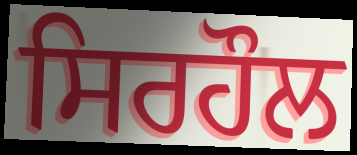
ਸਿਰਹੌਲ